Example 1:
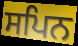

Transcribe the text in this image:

ਸਪਿਨ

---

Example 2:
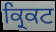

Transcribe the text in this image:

ਕ੍ਰਿਕਟ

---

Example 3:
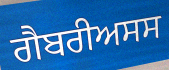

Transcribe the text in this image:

ਗੈਬਰੀਅਸਸ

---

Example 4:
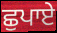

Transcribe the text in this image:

ਛੁਪਾਏ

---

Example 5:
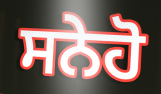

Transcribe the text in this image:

ਸਨੇਹੋ